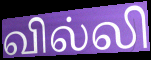
வில்லி